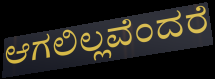
ಆಗಲಿಲ್ಲವೆಂದರೆ